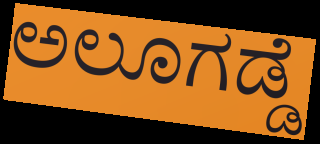
ಅಲೂಗಡ್ಡೆ